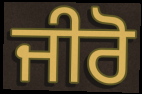
ਜੀਰੋ